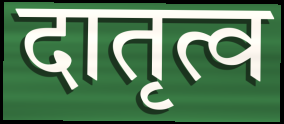
दातृत्व